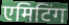
एमिटिंग